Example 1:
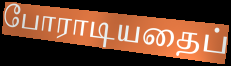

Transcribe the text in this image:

போராடியதைப்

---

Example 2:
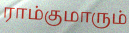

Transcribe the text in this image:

ராம்குமாரும்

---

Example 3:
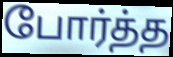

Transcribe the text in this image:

போர்த்த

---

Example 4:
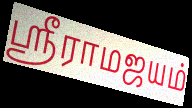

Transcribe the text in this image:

ஸ்ரீராமஜயம்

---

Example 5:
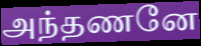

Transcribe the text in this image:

அந்தணனே